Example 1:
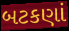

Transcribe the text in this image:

બટકણાં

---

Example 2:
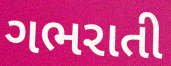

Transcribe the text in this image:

ગભરાતી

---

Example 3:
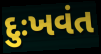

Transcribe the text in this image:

દુઃખવંત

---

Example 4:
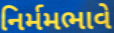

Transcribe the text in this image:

નિર્મમભાવે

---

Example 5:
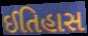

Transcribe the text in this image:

ઈતિહાસ